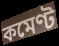
কমেণ্ট